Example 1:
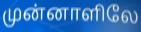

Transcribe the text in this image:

முன்னாளிலே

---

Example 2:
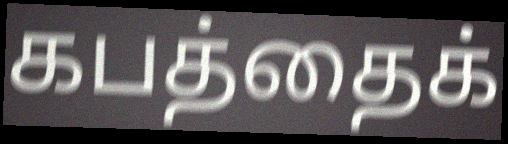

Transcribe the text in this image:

கபத்தைக்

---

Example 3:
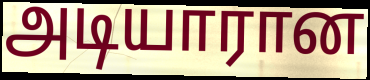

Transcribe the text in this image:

அடியாரான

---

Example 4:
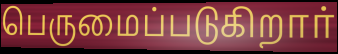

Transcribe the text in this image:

பெருமைப்படுகிறார்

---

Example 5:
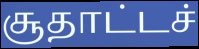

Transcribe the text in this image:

சூதாட்டச்